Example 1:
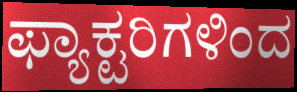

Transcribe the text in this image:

ಫ್ಯಾಕ್ಟರಿಗಳಿಂದ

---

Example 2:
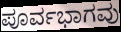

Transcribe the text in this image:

ಪೂರ್ವಭಾಗವು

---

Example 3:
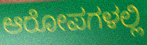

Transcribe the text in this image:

ಆರೋಪಗಳಲ್ಲಿ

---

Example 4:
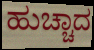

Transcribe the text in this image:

ಹುಚ್ಚಾದ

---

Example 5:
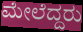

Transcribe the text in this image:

ಮೇಲೆದ್ದರು